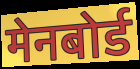
मेनबोर्ड